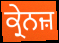
ਕ੍ਰੇਨਜ਼